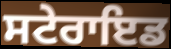
ਸਟੇਰਾਇਡ